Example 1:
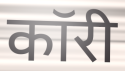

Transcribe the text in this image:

कॉरी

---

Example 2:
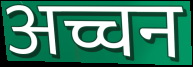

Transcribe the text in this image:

अच्चन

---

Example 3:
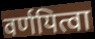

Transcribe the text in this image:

वर्णयित्वा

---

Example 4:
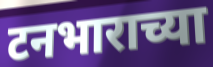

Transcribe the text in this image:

टनभाराच्या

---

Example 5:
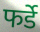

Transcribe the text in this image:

फर्डे